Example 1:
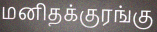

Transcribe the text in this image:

மனிதக்குரங்கு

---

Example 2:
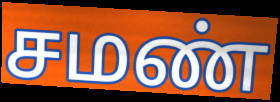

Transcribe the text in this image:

சமண்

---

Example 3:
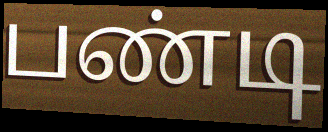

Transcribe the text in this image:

பண்டி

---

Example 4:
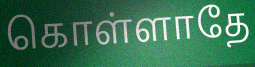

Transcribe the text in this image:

கொள்ளாதே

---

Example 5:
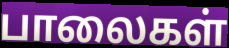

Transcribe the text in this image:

பாலைகள்